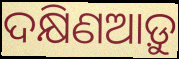
ଦକ୍ଷିଣଆଡ଼ୁ